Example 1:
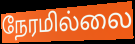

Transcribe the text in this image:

நேரமில்லை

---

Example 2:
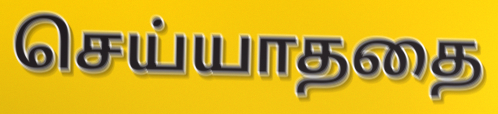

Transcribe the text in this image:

செய்யாததை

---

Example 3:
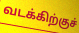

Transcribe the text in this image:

வடக்கிற்குச்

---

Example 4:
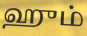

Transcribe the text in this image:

ஹும்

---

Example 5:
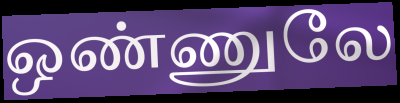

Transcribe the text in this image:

ஒண்ணுலே